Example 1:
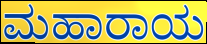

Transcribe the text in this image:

ಮಹಾರಾಯ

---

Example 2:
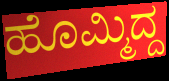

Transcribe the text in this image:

ಹೊಮ್ಮಿದ್ದ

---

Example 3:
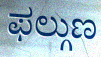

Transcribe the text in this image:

ಫಲ್ಗುಣ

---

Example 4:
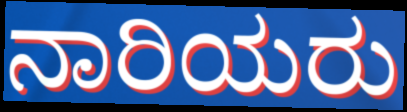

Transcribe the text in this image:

ನಾರಿಯರು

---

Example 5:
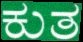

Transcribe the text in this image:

ಕುತ